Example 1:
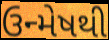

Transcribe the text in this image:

ઉન્મેષથી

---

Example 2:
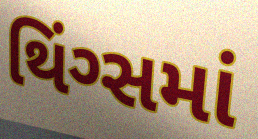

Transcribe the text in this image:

થિંગ્સમાં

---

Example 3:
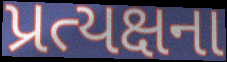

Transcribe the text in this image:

પ્રત્યક્ષના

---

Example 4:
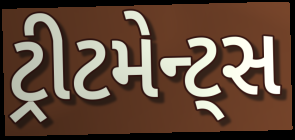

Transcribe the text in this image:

ટ્રીટમેન્ટ્સ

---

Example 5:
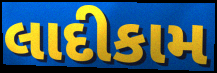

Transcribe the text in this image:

લાદીકામ